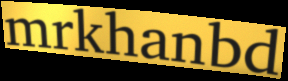
mrkhanbd